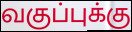
வகுப்புக்கு